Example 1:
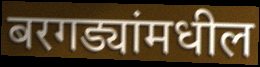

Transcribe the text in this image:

बरगड्यांमधील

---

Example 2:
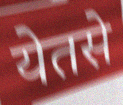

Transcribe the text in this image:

येतसे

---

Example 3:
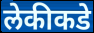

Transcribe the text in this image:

लेकीकडे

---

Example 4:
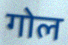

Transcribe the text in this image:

गोल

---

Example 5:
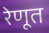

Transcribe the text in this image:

रेणूत